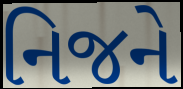
નિજને